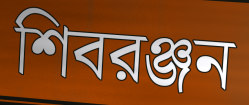
শিবরঞ্জন